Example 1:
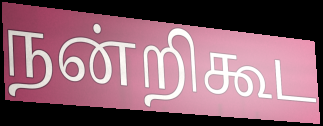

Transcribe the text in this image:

நன்றிகூட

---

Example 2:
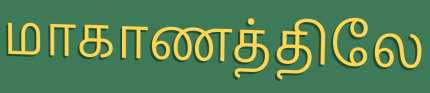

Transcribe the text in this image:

மாகாணத்திலே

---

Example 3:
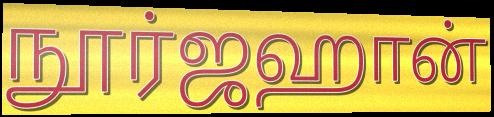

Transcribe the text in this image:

நூர்ஜஹான்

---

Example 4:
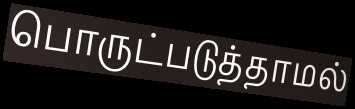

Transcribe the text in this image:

பொருட்படுத்தாமல்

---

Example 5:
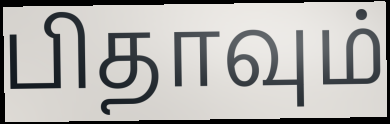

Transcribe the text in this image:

பிதாவும்